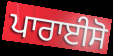
ਪਾਰਾਈਸੋ